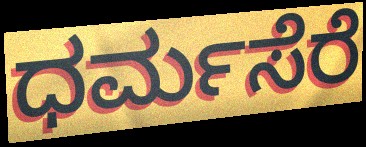
ಧರ್ಮಸೆರೆ